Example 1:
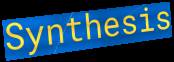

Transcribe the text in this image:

Synthesis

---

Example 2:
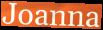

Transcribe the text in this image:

Joanna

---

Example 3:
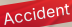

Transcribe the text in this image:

Accident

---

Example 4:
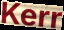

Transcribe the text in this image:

Kerr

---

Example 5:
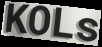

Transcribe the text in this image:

KOLs